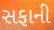
સફાની